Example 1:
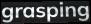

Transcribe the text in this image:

grasping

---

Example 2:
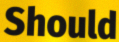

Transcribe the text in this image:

Should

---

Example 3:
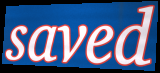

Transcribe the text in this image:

saved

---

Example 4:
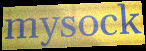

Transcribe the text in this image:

mysock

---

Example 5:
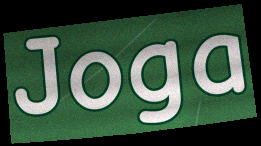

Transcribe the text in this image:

Joga